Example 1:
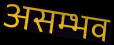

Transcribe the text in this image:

असम्भव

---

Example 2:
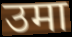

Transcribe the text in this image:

उमा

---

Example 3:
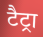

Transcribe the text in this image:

टैट्रा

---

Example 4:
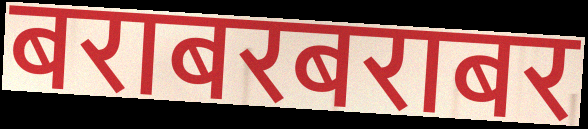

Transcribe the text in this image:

बराबरबराबर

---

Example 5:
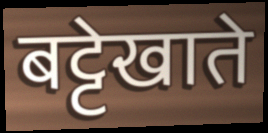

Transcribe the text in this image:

बट्टेखाते